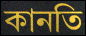
কানতি